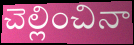
చెల్లించినా